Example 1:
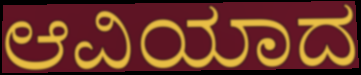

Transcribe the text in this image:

ಆವಿಯಾದ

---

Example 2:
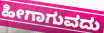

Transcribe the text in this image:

ಹೀಗಾಗುವದು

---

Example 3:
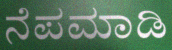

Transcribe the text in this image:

ನೆಪಮಾಡಿ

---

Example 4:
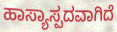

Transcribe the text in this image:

ಹಾಸ್ಯಾಸ್ಪದವಾಗಿದೆ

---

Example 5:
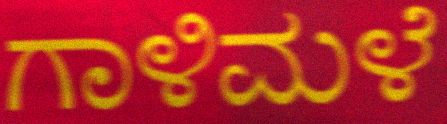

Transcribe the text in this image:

ಗಾಳಿಮಳೆ